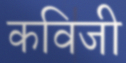
कविजी